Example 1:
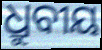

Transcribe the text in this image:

ଧ୍ରୁବୀୟ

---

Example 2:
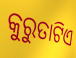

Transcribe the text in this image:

କୁରୁତାଟିଏ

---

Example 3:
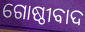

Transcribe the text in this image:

ଗୋଷ୍ଠୀବାଦ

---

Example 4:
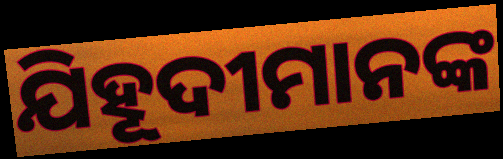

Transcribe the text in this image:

ଯିହୂଦୀମାନଙ୍କ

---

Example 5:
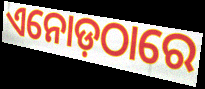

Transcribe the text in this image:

ଏନୋଡ଼ଠାରେ